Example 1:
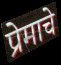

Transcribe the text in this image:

प्रेमाचे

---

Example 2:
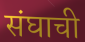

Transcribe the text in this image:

संघाची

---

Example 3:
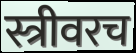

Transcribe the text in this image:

स्त्रीवरच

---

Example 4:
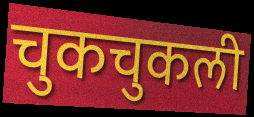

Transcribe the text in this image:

चुकचुकली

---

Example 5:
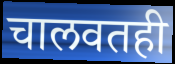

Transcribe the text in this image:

चालवतही